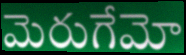
మెరుగేమో